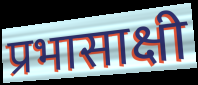
प्रभासाक्षी